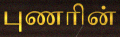
புணரின்